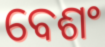
ବେଶଂ